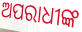
ଅପରାଧୀଙ୍କ